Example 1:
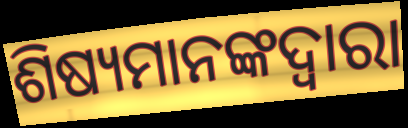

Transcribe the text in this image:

ଶିଷ୍ୟମାନଙ୍କଦ୍ୱାରା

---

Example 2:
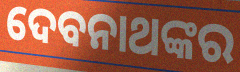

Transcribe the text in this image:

ଦେବନାଥଙ୍କର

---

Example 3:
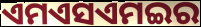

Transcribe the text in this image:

ଏମଏସଏମଇର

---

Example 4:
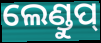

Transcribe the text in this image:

ଲେଣ୍ଡୁପ୍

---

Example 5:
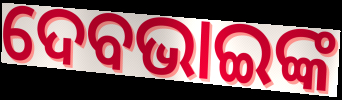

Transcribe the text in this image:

ଦେବଭାଇଙ୍କ